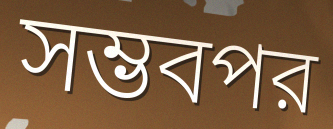
সম্ভবপর